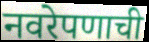
नवरेपणाची